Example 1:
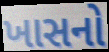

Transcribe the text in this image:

ખાસનો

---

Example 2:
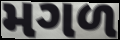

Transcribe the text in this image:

મગળ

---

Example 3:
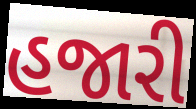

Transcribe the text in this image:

હજારી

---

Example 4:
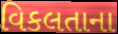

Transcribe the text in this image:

વિકલતાના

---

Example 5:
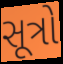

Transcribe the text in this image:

સૂત્રો